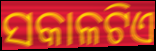
ସକାଳଟିଏ